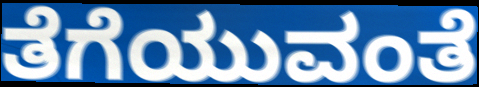
ತೆಗೆಯುವಂತೆ